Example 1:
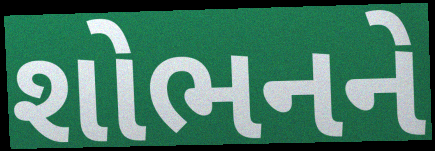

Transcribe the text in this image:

શોભનને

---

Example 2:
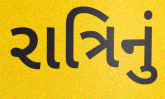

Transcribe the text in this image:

રાત્રિનું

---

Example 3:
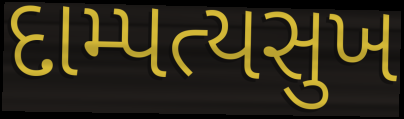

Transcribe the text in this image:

દામ્પત્યસુખ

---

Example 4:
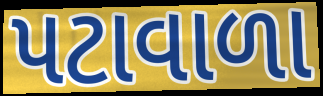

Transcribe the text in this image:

પટાવાળા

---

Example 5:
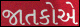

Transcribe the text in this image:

જાતકોએ